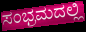
ಸಂಭ್ರಮದಲ್ಲಿ